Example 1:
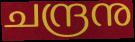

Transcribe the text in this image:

ചന്ദ്രനു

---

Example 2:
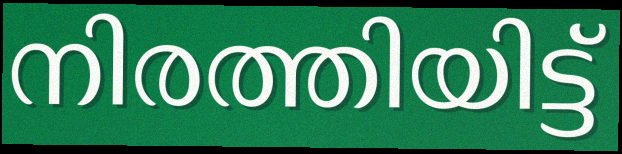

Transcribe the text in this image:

നിരത്തിയിട്ട്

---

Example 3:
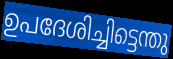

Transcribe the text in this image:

ഉപദേശിച്ചിട്ടെന്തു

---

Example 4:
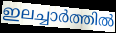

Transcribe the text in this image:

ഇലച്ചാർത്തിൽ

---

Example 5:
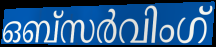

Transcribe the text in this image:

ഒബ്സർവിംഗ്